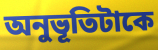
অনুভূতিটাকে